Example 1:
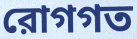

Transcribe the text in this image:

রোগগত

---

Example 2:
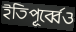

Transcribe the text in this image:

ইতিপূর্ব্বেও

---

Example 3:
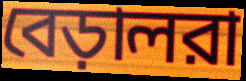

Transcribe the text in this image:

বেড়ালরা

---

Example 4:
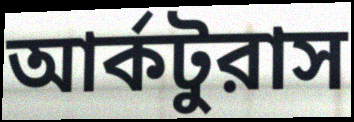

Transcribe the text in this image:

আর্কটুরাস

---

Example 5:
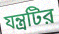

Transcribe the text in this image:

যন্ত্রটির